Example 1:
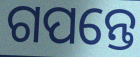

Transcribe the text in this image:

ଗପନ୍ତେ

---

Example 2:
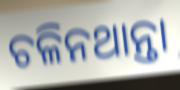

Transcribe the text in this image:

ଚଳିନଥାନ୍ତା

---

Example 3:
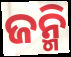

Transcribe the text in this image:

ଜନ୍ମି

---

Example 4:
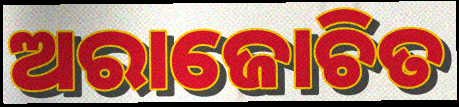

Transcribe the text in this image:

ଅରାଜୋଚିତ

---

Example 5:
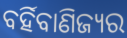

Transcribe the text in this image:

ବର୍ହିବାଣିଜ୍ୟର